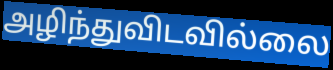
அழிந்துவிடவில்லை